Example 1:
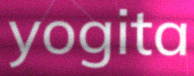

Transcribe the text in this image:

yogita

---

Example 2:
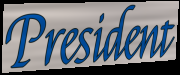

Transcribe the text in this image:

President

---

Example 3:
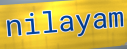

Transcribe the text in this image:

nilayam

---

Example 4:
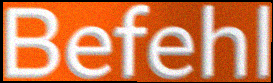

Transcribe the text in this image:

Befehl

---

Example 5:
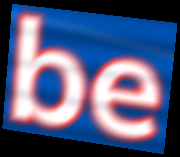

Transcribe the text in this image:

be